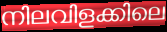
നിലവിളക്കിലെ